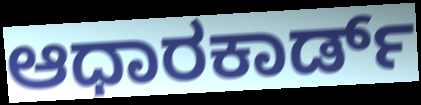
ಆಧಾರಕಾರ್ಡ್